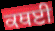
ਕਥਈ